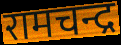
रामचन्द्र